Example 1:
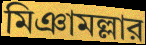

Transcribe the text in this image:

মিঞামল্লার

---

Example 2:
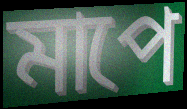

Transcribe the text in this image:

মাপে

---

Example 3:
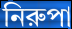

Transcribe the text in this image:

নিরুপা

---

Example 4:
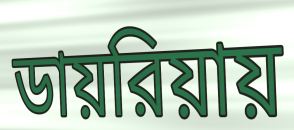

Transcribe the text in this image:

ডায়রিয়ায়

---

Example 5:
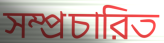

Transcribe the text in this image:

সম্প্রচারিত